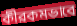
কীরকমভাবে